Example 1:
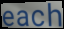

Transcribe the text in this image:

each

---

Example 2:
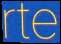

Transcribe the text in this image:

rte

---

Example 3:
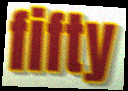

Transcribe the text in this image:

fifty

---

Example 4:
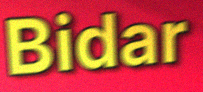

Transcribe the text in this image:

Bidar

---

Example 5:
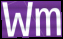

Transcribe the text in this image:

Wm